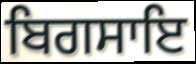
ਬਿਗਸਾਇ